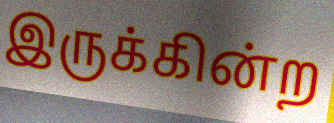
இருக்கின்ற